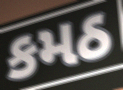
કમઠ